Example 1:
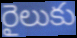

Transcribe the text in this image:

రైలుకు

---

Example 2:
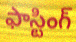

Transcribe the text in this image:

ఫాస్టింగ్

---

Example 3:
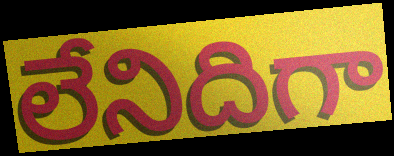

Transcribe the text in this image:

లేనిదిగా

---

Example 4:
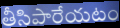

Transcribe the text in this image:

తీసిపారేయటం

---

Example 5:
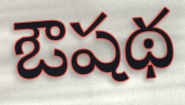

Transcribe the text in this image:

ఔషథ